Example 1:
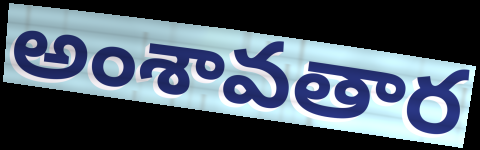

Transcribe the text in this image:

అంశావతార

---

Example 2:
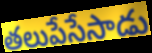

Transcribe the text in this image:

తలుపేసేసాడు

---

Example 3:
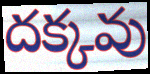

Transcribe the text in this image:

దక్కవు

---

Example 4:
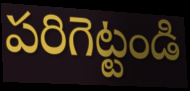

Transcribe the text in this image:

పరిగెట్టండి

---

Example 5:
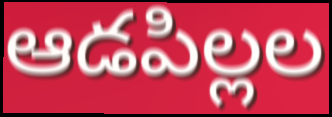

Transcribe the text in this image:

ఆడపిల్లల